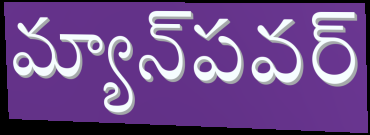
మ్యాన్‌పవర్